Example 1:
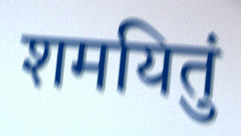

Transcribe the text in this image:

शमयितुं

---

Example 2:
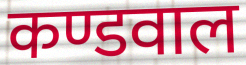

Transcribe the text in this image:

कण्डवाल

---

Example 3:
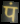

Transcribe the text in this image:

पं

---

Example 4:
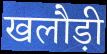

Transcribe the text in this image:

खलौड़ी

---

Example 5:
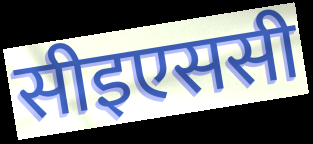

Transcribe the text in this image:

सीइएससी